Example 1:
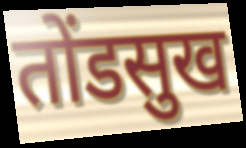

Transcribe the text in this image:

तोंडसुख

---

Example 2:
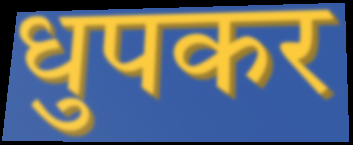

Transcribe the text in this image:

धुपकर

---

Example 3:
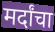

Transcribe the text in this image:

मर्दांचा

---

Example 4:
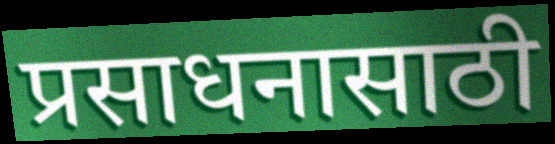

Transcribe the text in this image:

प्रसाधनासाठी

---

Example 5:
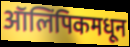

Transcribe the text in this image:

ऑलिंपिकमधून